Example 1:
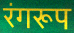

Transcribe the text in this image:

रंगरूप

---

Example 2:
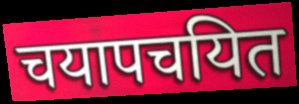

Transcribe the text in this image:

चयापचयित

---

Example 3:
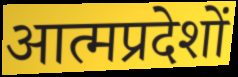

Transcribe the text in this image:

आत्मप्रदेशों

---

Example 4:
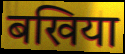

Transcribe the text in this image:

बखिया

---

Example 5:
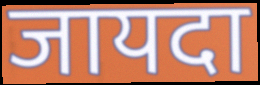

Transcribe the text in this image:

जायदा